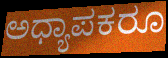
ಅಧ್ಯಾಪಕರೂ